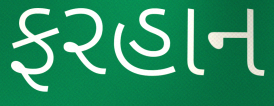
ફરહાન